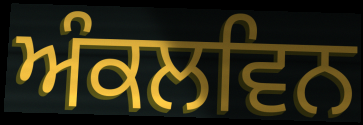
ਅੰਕਲਵਿਨ